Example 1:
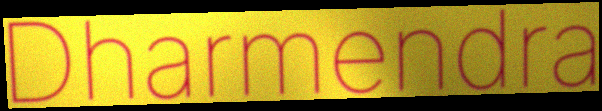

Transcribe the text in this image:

Dharmendra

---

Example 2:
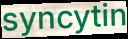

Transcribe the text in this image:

syncytin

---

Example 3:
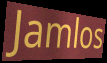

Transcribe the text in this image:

Jamlos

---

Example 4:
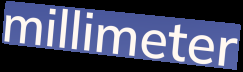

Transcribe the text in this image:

millimeter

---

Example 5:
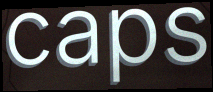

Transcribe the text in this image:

caps